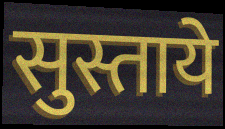
सुस्ताये